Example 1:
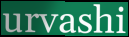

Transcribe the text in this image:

urvashi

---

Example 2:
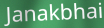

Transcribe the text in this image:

Janakbhai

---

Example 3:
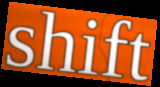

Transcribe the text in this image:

shift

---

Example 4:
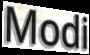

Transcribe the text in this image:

Modi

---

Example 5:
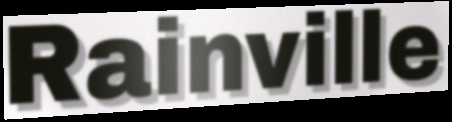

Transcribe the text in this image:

Rainville